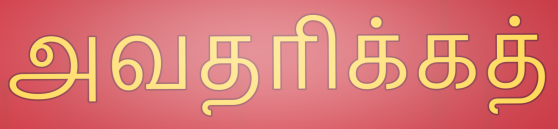
அவதரிக்கத்